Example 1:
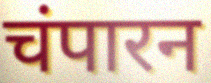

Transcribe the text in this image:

चंपारन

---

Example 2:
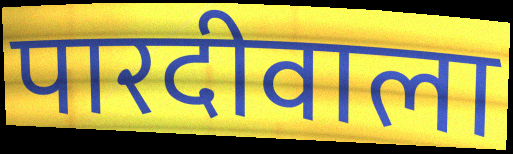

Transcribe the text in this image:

पारदीवाला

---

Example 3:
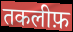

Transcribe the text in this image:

तकलीफ़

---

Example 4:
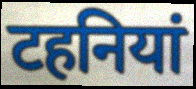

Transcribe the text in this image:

टहनियां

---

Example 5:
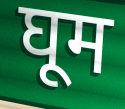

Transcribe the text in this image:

घूम